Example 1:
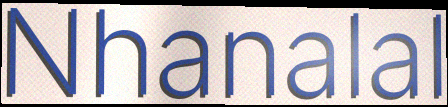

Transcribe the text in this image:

Nhanalal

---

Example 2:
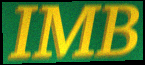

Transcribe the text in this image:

IMB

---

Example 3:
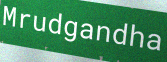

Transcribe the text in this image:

Mrudgandha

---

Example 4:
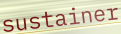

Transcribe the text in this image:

sustainer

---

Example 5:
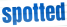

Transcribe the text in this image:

spotted